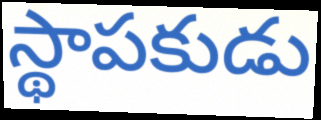
స్థాపకుడు